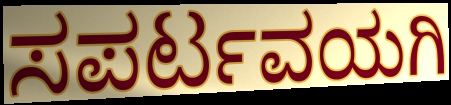
ಸಪರ್ಟವಯಗಿ